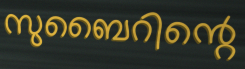
സുബൈറിന്റെ